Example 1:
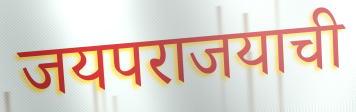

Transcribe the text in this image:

जयपराजयाची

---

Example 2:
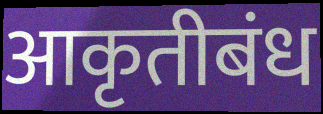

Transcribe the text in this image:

आकृतीबंध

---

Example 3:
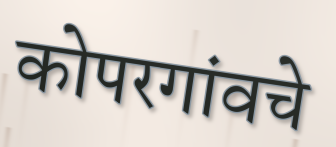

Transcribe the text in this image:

कोपरगांवचे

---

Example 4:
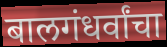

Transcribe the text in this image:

बालगंधर्वांचा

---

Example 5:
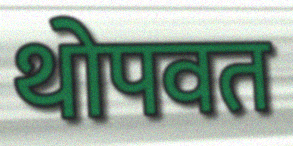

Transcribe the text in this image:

थोपवत